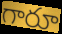
గారూ